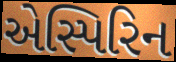
એસ્પિરિન